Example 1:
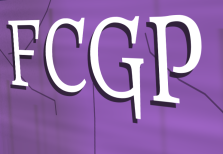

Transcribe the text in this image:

FCGP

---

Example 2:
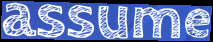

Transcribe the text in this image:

assume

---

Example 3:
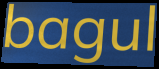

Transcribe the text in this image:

bagul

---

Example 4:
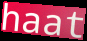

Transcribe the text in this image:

haat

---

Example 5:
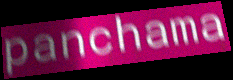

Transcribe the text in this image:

panchama